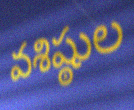
వశిష్ఠుల